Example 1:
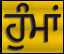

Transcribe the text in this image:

ਹੁੰਮਾਂ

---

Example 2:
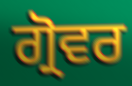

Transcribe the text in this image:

ਗ੍ਰੋਵਰ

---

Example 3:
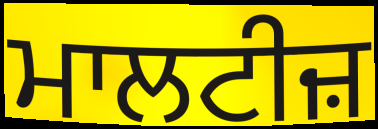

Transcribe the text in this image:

ਮਾਲਟੀਜ਼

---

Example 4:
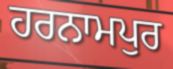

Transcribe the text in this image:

ਹਰਨਾਮਪੁਰ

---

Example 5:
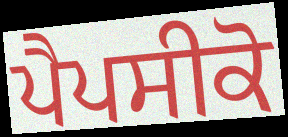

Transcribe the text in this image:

ਪੈਪਸੀਕੋ